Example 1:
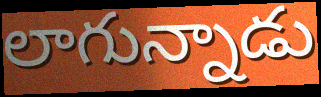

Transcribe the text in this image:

లాగున్నాడు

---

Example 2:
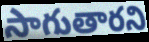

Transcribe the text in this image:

సాగుతారని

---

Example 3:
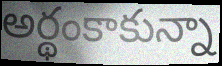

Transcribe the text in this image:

అర్థంకాకున్నా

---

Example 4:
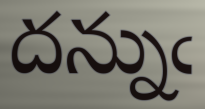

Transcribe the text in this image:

దన్నుఁ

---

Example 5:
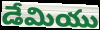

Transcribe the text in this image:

డేమియు